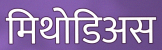
मिथोडिअस